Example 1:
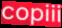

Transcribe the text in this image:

copiii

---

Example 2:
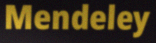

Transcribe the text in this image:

Mendeley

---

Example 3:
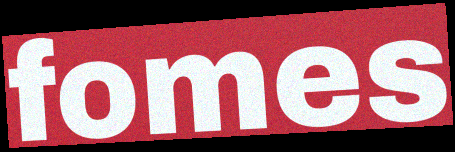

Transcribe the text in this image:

fomes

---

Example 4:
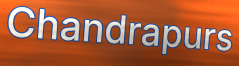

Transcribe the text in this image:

Chandrapurs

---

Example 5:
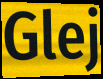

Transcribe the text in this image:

Glej